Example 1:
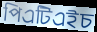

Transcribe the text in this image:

পিএটিএইচ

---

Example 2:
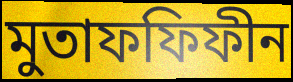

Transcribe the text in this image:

মুতাফফিফীন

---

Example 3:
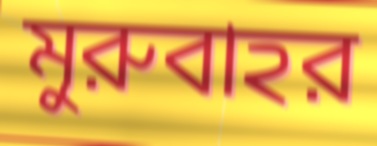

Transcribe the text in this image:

মুরুবাহর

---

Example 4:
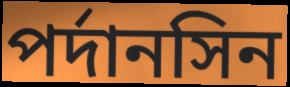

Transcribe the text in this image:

পর্দানসিন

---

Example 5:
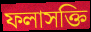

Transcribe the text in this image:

ফলাসক্তি